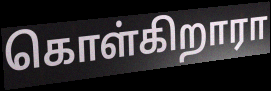
கொள்கிறாரா